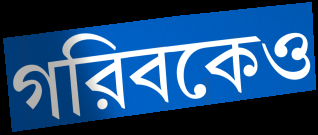
গরিবকেও